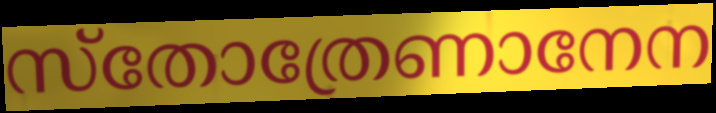
സ്തോത്രേണാനേന